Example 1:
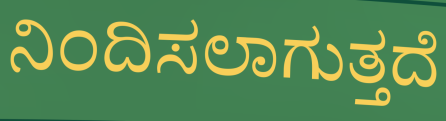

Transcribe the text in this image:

ನಿಂದಿಸಲಾಗುತ್ತದೆ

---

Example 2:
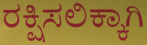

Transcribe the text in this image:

ರಕ್ಷಿಸಲಿಕ್ಕಾಗಿ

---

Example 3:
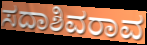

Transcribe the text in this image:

ಸದಾಶಿವರಾವ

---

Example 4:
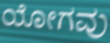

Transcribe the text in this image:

ಯೋಗವು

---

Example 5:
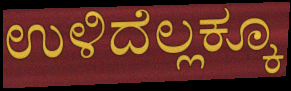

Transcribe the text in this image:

ಉಳಿದೆಲ್ಲಕ್ಕೂ